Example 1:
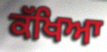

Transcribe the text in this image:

ਕੱਖਿਆ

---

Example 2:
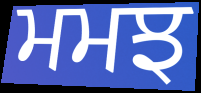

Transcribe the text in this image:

ਮਮਝ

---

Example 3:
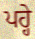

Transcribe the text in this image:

ਪਹ੍ਹੇ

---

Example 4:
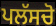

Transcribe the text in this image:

ਪਲੱਸਚੋ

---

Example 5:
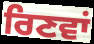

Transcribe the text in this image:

ਰਿਣਵਾਂ